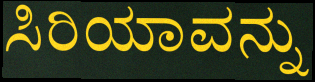
ಸಿರಿಯಾವನ್ನು